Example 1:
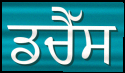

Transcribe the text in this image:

ਡਚੈੱਸ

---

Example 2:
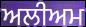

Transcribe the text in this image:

ਅਲੀਅਮ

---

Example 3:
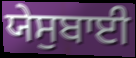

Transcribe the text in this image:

ਯੇਸੁਬਾਈ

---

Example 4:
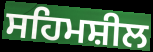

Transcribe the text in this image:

ਸਹਿਮਸ਼ੀਲ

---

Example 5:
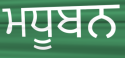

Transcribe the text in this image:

ਮਧੂਬਨ